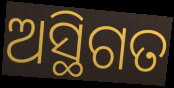
ଅସ୍ଥିଗତ